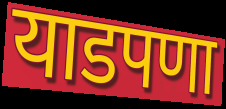
याडपणा